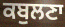
ਕਬੁਲਣਾ